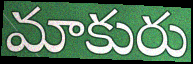
మాకురు